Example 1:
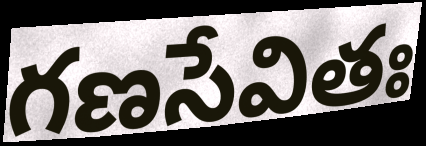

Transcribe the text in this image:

గణసేవితః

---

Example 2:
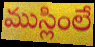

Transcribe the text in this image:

ముస్లింలే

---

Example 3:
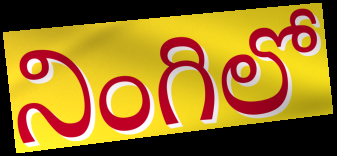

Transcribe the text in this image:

నింగిలో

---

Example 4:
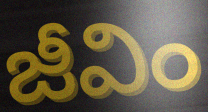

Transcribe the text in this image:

జీవిం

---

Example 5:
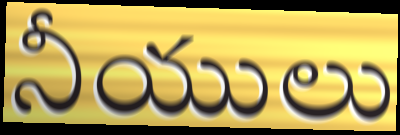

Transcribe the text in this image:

నీయులు